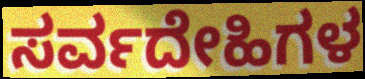
ಸರ್ವದೇಹಿಗಳ